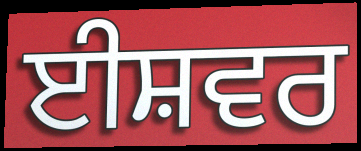
ਈਸ਼ਵਰ